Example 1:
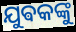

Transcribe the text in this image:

ଯୁଵକଙ୍କୁ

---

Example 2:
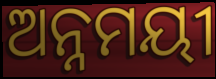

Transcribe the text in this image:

ଅନ୍ନମୟୀ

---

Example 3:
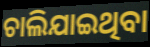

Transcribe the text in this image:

ଚାଲିଯାଇଥିବା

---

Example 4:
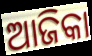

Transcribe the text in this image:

ଆଜିକା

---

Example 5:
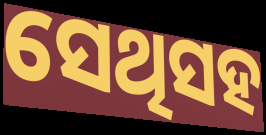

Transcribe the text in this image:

ସେଥିସହ